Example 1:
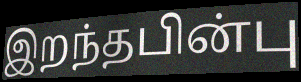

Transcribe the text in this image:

இறந்தபின்பு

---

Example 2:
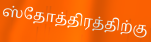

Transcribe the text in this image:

ஸ்தோத்திரத்திற்கு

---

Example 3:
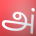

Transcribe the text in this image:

அ்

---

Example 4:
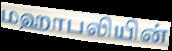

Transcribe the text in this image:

மஹாபலியின்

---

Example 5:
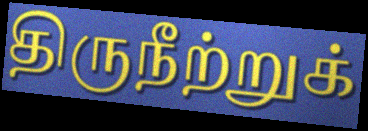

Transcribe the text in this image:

திருநீற்றுக்